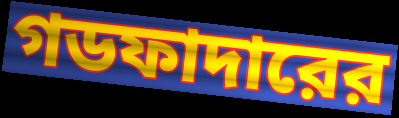
গডফাদারের